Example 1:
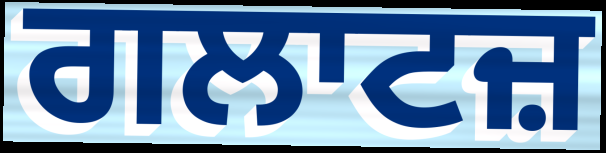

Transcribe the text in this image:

ਗਲਾਟਜ਼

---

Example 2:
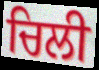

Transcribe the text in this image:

ਚਿਲੀ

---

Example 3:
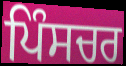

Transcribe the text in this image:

ਪਿੰਸਚਰ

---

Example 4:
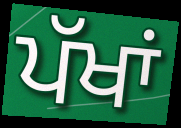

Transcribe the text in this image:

ਪੱਖਾਂ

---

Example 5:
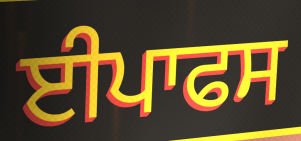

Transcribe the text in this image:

ਈਪਾਫਸ